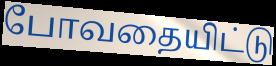
போவதையிட்டு